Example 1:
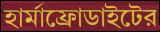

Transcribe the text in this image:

হার্মাফ্রোডাইটের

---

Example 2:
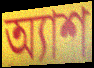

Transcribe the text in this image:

অ্যাশ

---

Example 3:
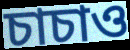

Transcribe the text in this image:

চাচাও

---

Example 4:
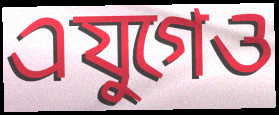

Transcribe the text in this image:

এযুগেও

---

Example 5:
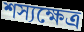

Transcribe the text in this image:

শস্যক্ষেত্র